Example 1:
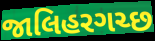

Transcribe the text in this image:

જાલિહરગચ્છ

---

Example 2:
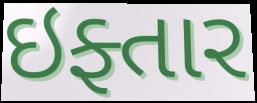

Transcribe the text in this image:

ઇફ્તાર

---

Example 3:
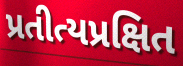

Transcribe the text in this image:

પ્રતીત્યપ્રક્ષિત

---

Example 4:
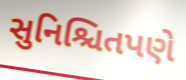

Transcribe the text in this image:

સુનિશ્ચિતપણે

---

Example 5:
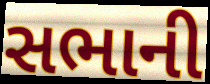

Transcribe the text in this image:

સભાની